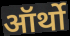
ऑर्थो